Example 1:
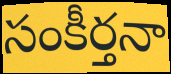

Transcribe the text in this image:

సంకీర్తనా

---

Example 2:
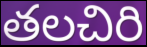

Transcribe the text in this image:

తలచిరి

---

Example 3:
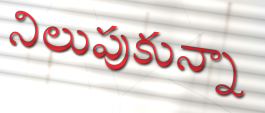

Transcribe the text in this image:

నిలుపుకున్నా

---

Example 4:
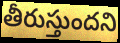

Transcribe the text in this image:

తీరుస్తుందని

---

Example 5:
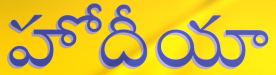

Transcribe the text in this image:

హోదీయా